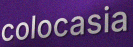
colocasia